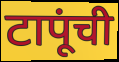
टापूंची